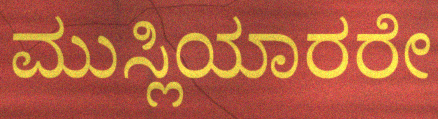
ಮುಸ್ಲಿಯಾರರೇ